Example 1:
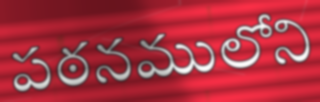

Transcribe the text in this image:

పఠనములోని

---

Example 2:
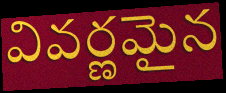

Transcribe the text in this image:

వివర్ణమైన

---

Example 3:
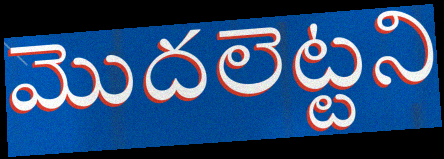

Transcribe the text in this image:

మొదలెట్టని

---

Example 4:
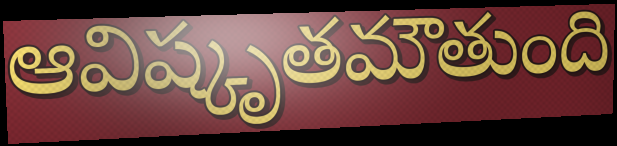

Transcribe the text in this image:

ఆవిష్కృతమౌతుంది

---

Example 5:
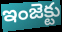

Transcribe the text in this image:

ఇంజెక్టు